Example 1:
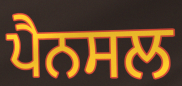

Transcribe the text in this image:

ਪੈਨਸਲ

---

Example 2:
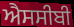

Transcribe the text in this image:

ਐਸਸੀਬੀ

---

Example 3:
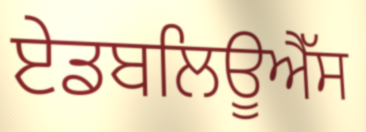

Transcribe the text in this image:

ਏਡਬਲਿਊਐੱਸ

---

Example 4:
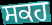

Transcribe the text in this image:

ਸਕਹ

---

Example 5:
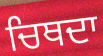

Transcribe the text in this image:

ਚਿਥਦਾ